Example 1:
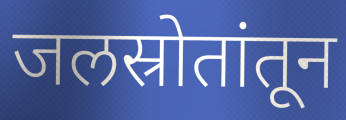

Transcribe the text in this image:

जलस्रोतांतून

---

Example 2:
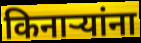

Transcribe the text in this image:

किनाऱ्यांना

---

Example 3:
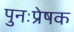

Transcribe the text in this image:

पुनःप्रेषक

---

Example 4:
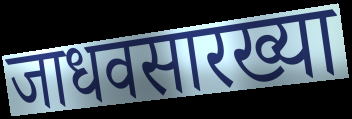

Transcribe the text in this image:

जाधवसारख्या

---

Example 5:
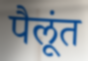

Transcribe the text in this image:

पैलूंत